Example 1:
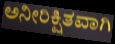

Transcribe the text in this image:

ಅನೀರಿಕ್ಷಿತವಾಗಿ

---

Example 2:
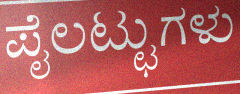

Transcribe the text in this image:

ಪೈಲಟ್ಟುಗಳು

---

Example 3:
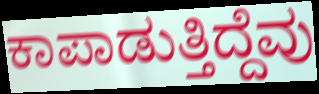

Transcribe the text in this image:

ಕಾಪಾಡುತ್ತಿದ್ದೆವು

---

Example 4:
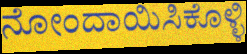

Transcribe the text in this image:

ನೋಂದಾಯಿಸಿಕೊಳ್ಳಿ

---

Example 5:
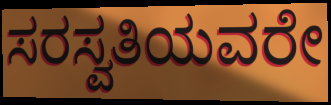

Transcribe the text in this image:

ಸರಸ್ವತಿಯವರೇ